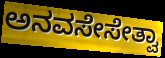
ಅನವಸೇಸೇತ್ವಾ